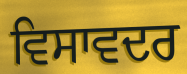
ਵਿਸਾਵਦਰ